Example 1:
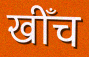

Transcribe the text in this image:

खीँच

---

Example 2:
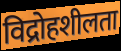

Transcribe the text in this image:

विद्रोहशीलता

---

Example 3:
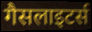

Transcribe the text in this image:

गैसलाइटर्स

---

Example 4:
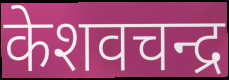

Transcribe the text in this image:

केशवचन्द्र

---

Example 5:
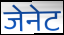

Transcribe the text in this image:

जेनेट